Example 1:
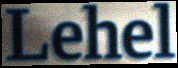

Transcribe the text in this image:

Lehel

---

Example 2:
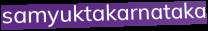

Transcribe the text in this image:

samyuktakarnataka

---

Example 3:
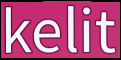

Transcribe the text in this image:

kelit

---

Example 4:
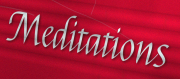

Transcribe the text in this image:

Meditations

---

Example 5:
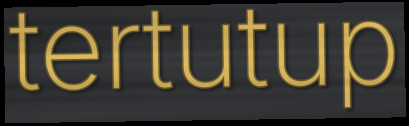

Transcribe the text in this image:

tertutup